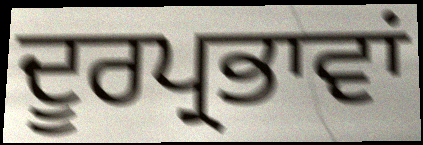
ਦੂਰਪ੍ਰਭਾਵਾਂ